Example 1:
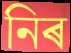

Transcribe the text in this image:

নিৰ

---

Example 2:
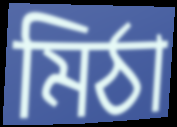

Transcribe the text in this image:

মিঠা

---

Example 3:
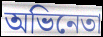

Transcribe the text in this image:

অভিনেতা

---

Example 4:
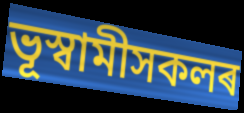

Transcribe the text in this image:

ভূস্বামীসকলৰ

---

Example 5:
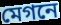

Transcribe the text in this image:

মেগনে